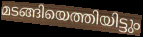
മടങ്ങിയെത്തിയിട്ടും